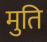
मुति